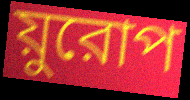
য়ুরোপ